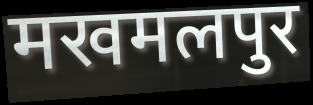
मखमलपुर